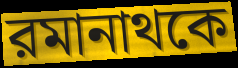
রমানাথকে